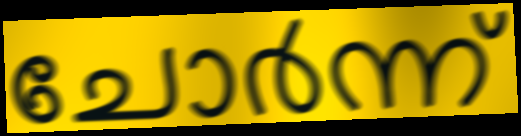
ചോർന്ന്